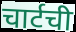
चार्टची